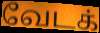
வேடக்